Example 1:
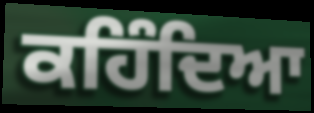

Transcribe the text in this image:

ਕਹਿੰਦਿਆ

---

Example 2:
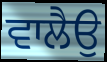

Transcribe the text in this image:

ਵਾਲੈਉ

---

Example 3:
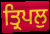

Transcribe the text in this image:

ਤ੍ਰਿਪਲੁ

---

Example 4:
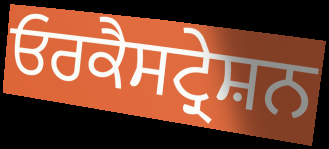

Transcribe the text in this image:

ਓਰਕੈਸਟ੍ਰੇਸ਼ਨ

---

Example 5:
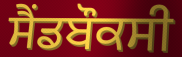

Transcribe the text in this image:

ਸੈਂਡਬੌਕਸੀ